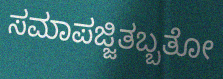
ಸಮಾಪಜ್ಜಿತಬ್ಬತೋ